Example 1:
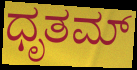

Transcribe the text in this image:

ಧೃತಮ್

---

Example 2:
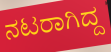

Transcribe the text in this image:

ನಟರಾಗಿದ್ದ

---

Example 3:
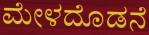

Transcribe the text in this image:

ಮೇಳದೊಡನೆ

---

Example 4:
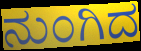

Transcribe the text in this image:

ನುಂಗಿದ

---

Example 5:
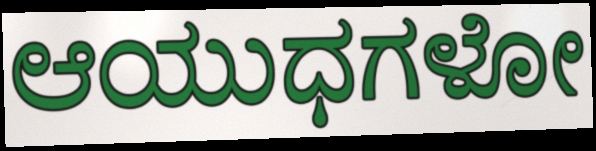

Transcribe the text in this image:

ಆಯುಧಗಳೋ